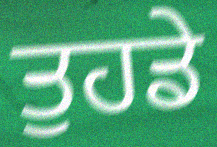
ਤੁਹਡੇ